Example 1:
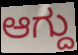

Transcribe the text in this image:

ಆಗ್ದು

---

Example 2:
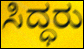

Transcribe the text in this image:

ಸಿದ್ಧರು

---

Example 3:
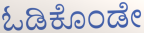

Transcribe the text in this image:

ಓಡಿಕೊಂಡೇ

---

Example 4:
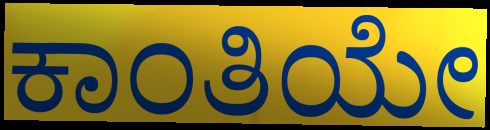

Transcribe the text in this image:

ಕಾಂತಿಯೇ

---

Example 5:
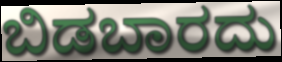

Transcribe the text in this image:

ಬಿಡಬಾರದು